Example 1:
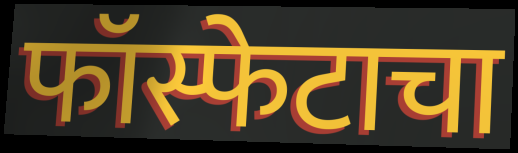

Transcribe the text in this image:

फॉस्फेटाचा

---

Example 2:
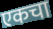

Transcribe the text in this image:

एकचा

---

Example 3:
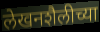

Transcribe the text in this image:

लेखनशैलीच्या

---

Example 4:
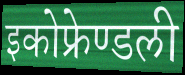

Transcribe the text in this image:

इकोफ्रेण्डली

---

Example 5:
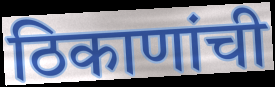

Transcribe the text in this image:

ठिकाणांची